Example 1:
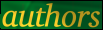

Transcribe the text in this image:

authors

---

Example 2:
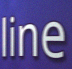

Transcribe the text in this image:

line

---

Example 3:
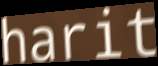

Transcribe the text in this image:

harit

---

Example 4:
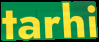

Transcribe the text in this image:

tarhi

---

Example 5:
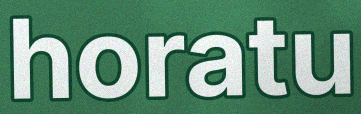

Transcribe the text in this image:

horatu